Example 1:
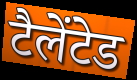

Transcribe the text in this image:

टैलेंटेड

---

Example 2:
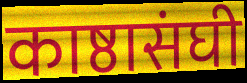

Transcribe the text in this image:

काष्ठासंघी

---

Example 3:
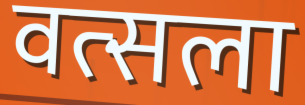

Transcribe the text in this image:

वत्‍सला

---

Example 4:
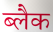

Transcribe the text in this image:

ब्लैक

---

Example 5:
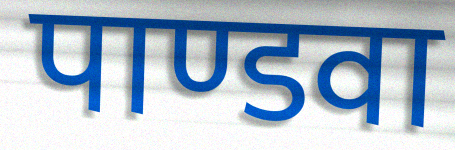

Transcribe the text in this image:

पाण्डवा